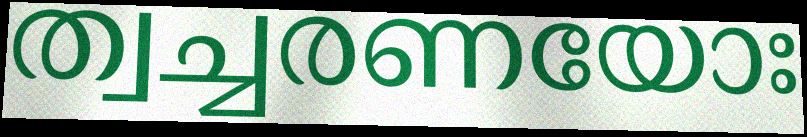
ത്വച്ചരണയോഃ